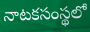
నాటకసంస్థలో